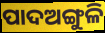
ପାଦଅଙ୍ଗୁଳି